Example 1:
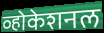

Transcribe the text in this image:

व्होकेशनल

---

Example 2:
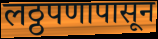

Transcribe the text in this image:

लठ्ठपणापासून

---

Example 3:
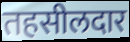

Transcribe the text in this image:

तहसीलदार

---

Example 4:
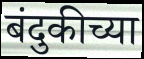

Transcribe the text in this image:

बंदुकीच्या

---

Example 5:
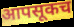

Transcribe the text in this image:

आपसूकच